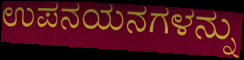
ಉಪನಯನಗಳನ್ನು